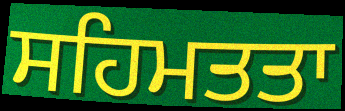
ਸਹਿਮਤਤਾ